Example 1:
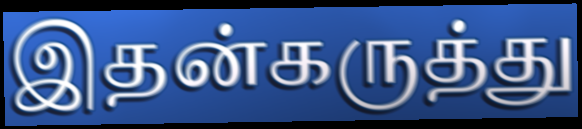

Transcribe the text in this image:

இதன்கருத்து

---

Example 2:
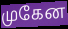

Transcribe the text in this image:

முகேன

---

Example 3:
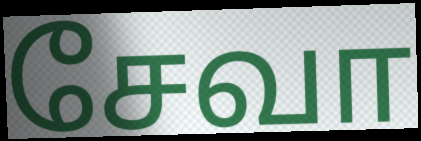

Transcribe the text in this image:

சேவா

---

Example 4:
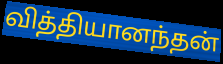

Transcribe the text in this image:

வித்தியானந்தன்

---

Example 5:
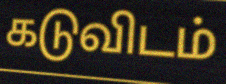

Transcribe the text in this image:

கடுவிடம்